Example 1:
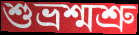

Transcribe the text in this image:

শুভ্রশ্মশ্রু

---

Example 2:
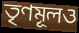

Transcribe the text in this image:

তৃণমূলও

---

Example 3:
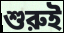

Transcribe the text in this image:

শুরুই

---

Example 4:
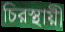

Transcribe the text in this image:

চিরস্থায়ী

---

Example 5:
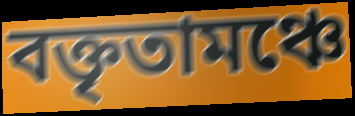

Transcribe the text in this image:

বক্তৃতামঞ্চে